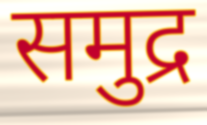
समुद्र